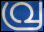
വ്ര